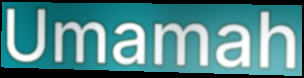
Umamah